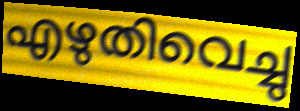
എഴുതിവെച്ചു